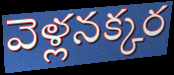
వెళ్లనక్కర